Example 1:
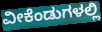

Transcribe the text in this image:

ವೀಕೆಂಡುಗಳಲ್ಲಿ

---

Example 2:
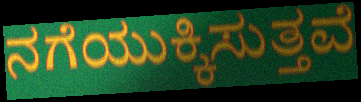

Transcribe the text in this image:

ನಗೆಯುಕ್ಕಿಸುತ್ತವೆ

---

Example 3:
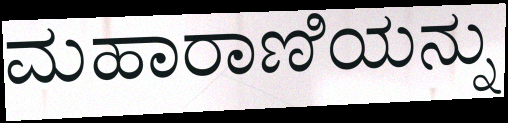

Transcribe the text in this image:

ಮಹಾರಾಣಿಯನ್ನು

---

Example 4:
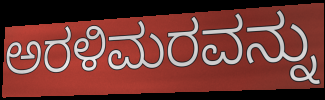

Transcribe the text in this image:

ಅರಳಿಮರವನ್ನು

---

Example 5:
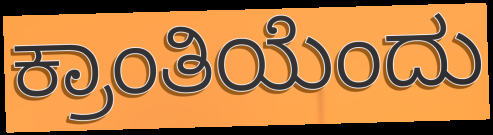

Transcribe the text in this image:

ಕ್ರಾಂತಿಯೆಂದು